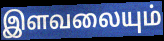
இளவலையும்